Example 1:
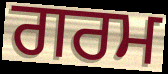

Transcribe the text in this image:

ਗਰਮ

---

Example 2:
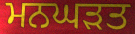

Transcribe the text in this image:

ਮਨਘੜਤ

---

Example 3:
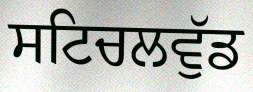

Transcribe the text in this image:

ਸਟਿਚਲਵੁੱਡ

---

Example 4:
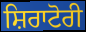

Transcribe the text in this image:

ਸ਼ਿਰਾਟੋਰੀ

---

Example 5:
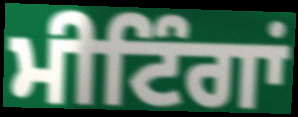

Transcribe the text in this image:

ਮੀਟਿੰਗਾਂ